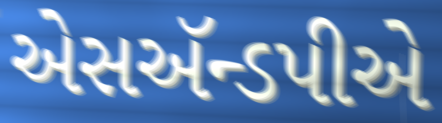
એસઍન્ડપીએ